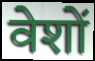
वेशों